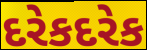
દરેકદરેક